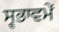
ਸ੍ਵਭਾਵਮੇਂ